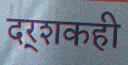
दर्शकही